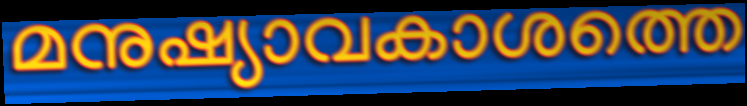
മനുഷ്യാവകാശത്തെ